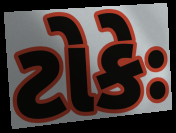
ટોકેઃ